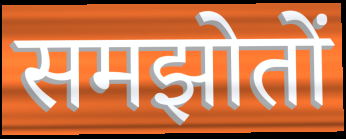
समझोतों